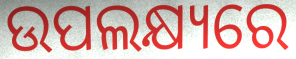
ଉପଲକ୍ଷ୍ୟରେ